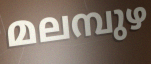
മലമ്പുഴ